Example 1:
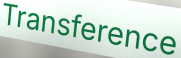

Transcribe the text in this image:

Transference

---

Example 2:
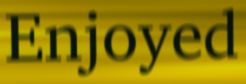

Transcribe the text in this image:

Enjoyed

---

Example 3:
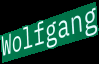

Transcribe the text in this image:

Wolfgang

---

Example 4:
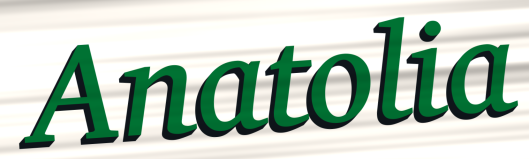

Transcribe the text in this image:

Anatolia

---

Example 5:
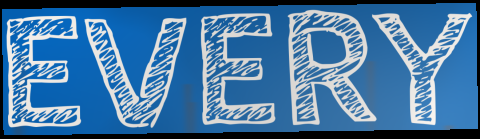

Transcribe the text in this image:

EVERY